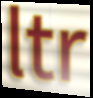
ltr